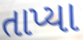
તાપ્યા